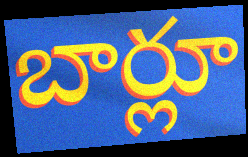
బార్లూ